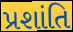
પ્રશાંતિ